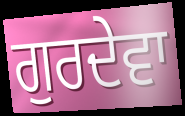
ਗੁਰਦੇਵਾ